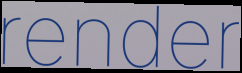
render